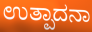
ಉತ್ಪಾದನಾ